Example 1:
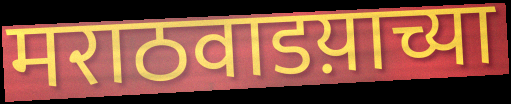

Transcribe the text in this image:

मराठवाडय़ाच्या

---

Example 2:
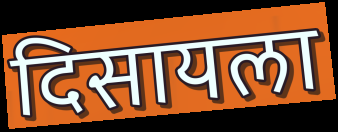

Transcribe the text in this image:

दिसायला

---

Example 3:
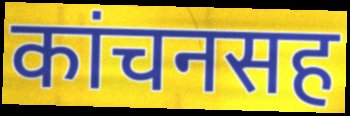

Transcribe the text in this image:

कांचनसह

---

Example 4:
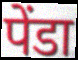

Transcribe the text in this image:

पेंडा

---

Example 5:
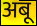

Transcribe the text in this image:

अबू